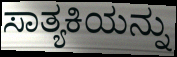
ಸಾತ್ಯಕಿಯನ್ನು